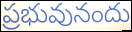
ప్రభువునందు